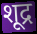
शूद्र